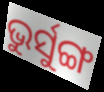
ଭୁର୍ସୁଙ୍ଗ